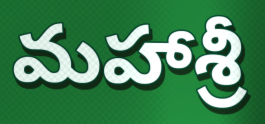
మహాశ్రీ